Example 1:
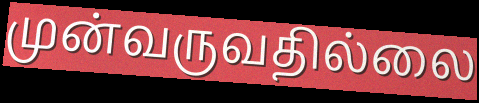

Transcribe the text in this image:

முன்வருவதில்லை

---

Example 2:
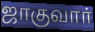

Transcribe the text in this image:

ஜாகுவார்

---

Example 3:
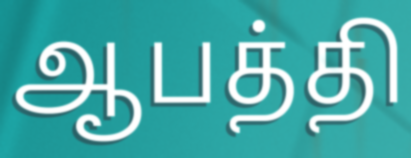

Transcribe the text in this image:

ஆபத்தி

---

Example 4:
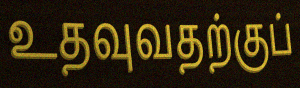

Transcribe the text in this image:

உதவுவதற்குப்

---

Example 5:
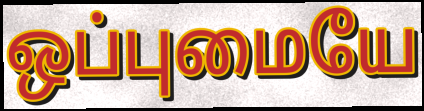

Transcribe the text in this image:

ஒப்புமையே